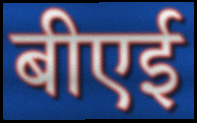
बीएई